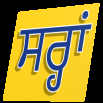
ਸਰ੍ਹਾਂ